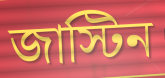
জাস্টিন